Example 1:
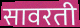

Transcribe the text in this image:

सावरती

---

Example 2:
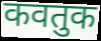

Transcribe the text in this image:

कवतुक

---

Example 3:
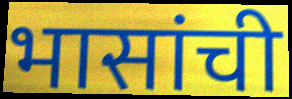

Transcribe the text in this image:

भासांची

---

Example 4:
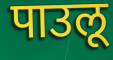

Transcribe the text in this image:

पाउलू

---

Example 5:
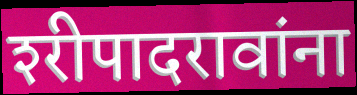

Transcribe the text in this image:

श्रीपादरावांना